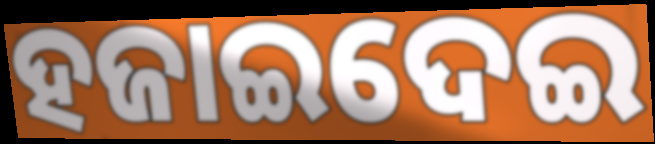
ହଜାଇଦେଇ